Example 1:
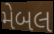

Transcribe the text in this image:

મેબલ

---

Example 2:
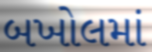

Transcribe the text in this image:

બખોલમાં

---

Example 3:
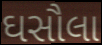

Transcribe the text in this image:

ઘસૌલા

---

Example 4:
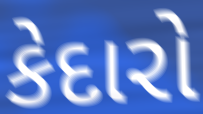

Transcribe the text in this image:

કેદારો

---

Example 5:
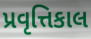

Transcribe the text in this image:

પ્રવૃત્તિકાલ